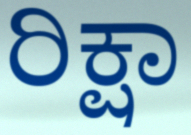
ರಿಕ್ಷಾ